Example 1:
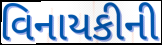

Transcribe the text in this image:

વિનાયકીની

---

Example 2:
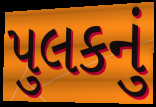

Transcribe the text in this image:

પુલકનું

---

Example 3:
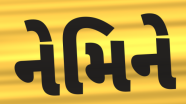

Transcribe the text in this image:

નેમિને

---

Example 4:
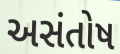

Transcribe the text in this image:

અસંતોષ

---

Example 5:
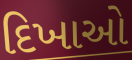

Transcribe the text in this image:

દિખાઓ